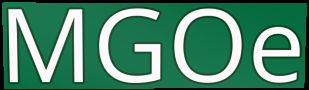
MGOe